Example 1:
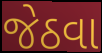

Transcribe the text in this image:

જેઠવા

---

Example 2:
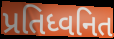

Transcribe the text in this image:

પ્રતિધ્વનિત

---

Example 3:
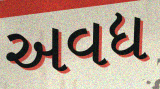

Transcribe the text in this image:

અવદ્ય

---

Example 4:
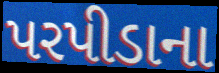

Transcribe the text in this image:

પરપીડાના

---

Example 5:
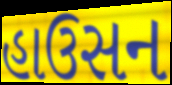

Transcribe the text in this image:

હાઉસન